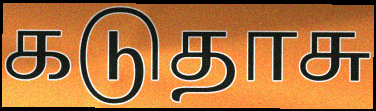
கடுதாசு